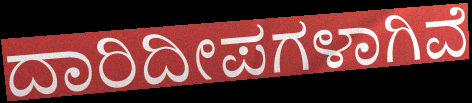
ದಾರಿದೀಪಗಳಾಗಿವೆ